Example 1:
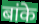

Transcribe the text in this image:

बांके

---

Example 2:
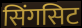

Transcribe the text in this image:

सिंगसिट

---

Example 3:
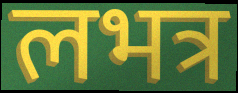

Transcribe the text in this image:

लभत्र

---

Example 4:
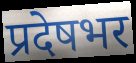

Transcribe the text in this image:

प्रदेषभर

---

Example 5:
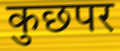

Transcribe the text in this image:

कुछपर